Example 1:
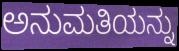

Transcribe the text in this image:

ಅನುಮತಿಯನ್ನು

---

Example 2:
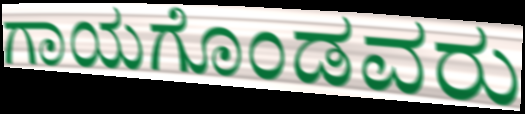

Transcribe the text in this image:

ಗಾಯಗೊಂಡವರು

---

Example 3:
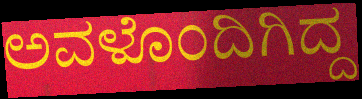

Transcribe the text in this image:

ಅವಳೊಂದಿಗಿದ್ದ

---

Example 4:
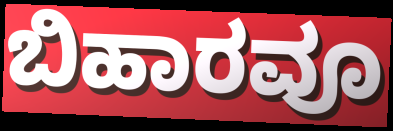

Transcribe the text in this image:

ಬಿಹಾರವೂ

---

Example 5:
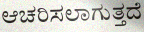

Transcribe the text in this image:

ಆಚರಿಸಲಾಗುತ್ತದೆ